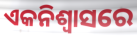
ଏକନିଶ୍ୱାସରେ